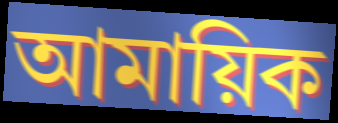
আমায়িক